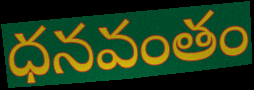
ధనవంతం